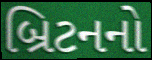
બ્રિટનનો